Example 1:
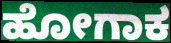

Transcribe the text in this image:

ಹೋಗಾಕ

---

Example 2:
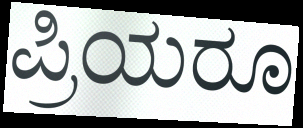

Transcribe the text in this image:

ಪ್ರಿಯರೂ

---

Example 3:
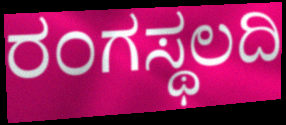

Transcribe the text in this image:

ರಂಗಸ್ಥಲದಿ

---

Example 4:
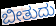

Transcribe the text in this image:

ಬೀತುದು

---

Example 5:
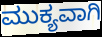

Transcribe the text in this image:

ಮುಕ್ಯವಾಗಿ